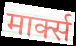
मार्क्‍स